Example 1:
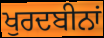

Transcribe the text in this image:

ਖੁਰਦਬੀਨਾਂ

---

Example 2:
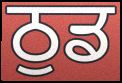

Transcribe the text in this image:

ਠੁਡ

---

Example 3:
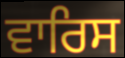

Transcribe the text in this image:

ਵਾਰਿਸ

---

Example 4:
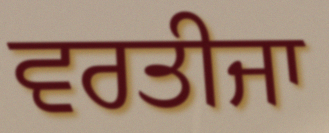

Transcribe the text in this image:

ਵਰਤੀਜਾ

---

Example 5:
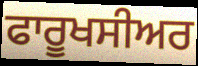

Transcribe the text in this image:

ਫਾਰੂਖਸੀਅਰ